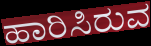
ಹಾರಿಸಿರುವ